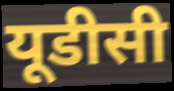
यूडीसी